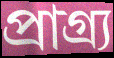
প্রাগ্র্য